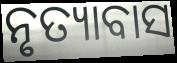
ନୃତ୍ୟାବାସ